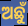
ଅଛୁଁ